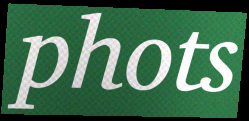
phots